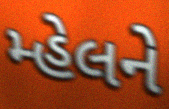
મ્હેલને